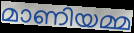
മാണിയമ്മ